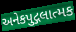
અનેકપુદ્ગલાત્મક